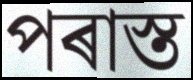
পৰাস্ত